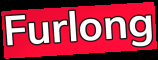
Furlong